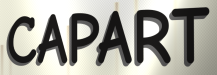
CAPART